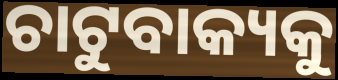
ଚାଟୁବାକ୍ୟକୁ